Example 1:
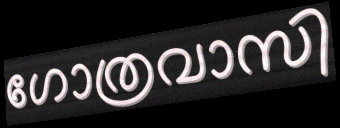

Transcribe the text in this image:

ഗോത്രവാസി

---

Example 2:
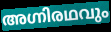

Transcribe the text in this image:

അഗ്നിരഥവും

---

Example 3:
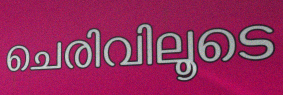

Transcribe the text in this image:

ചെരിവിലൂടെ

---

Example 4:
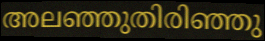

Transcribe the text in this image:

അലഞ്ഞുതിരിഞ്ഞു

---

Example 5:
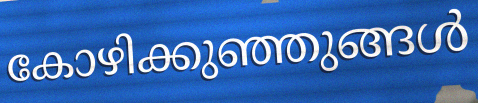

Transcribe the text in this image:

കോഴിക്കുഞ്ഞുങ്ങൾ